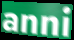
anni